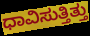
ಧಾವಿಸುತ್ತಿತ್ತು